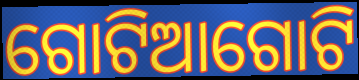
ଗୋଟିଆଗୋଟି